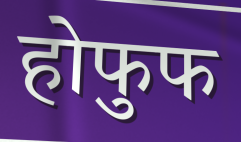
होफुफ